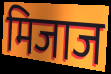
मिजाज